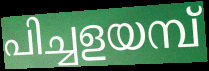
പിച്ചളയമ്പ്